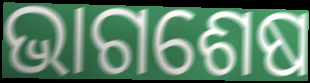
ଭାଗଶେଷ